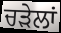
ਚੜੇਲਾਂ